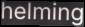
helming